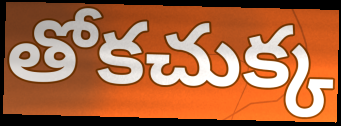
తోకచుక్క